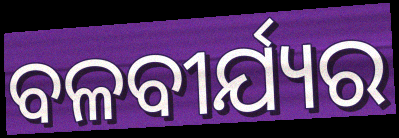
ବଳବୀର୍ଯ୍ୟର